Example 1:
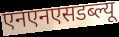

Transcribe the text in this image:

एनएनएसडब्ल्यू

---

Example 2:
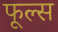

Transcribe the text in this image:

फूल्स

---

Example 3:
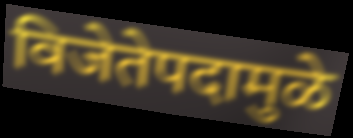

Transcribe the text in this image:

विजेतेपदामुळे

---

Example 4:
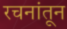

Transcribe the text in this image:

रचनांतून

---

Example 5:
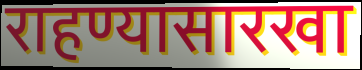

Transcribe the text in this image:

राहण्यासारखा